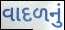
વાદળનું